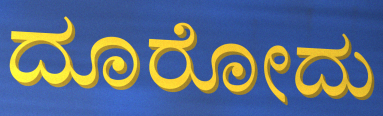
ದೂರೋದು